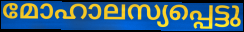
മോഹാലസ്യപ്പെട്ടു